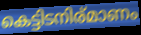
കെട്ടിടനിര്മാണം